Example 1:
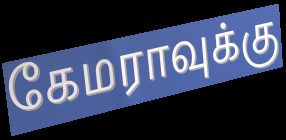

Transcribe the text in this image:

கேமராவுக்கு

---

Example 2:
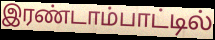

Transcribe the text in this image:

இரண்டாம்பாட்டில்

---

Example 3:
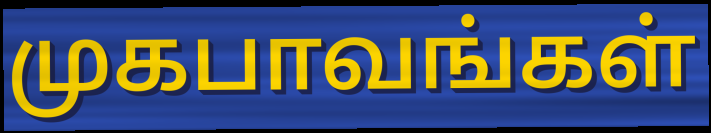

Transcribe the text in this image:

முகபாவங்கள்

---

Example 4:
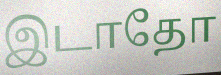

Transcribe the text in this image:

இடாதோ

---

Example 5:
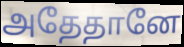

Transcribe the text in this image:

அதேதானே